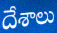
దేశాలు